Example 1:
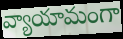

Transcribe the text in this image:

వ్యాయామంగా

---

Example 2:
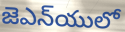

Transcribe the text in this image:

జెఎన్‌యులో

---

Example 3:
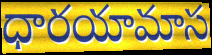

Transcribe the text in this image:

ధారయామాస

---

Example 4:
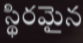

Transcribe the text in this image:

స్థిరమైన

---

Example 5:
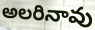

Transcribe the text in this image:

అలరినావు